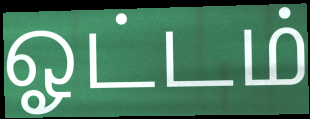
ஓட்டம்